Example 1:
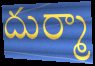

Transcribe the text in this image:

దుర్మా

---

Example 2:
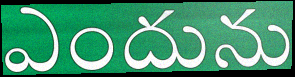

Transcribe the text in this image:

ఎందును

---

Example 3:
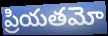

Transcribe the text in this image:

ప్రియతమో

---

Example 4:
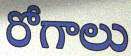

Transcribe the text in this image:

రోగాలు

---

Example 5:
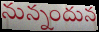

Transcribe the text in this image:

నున్నందున